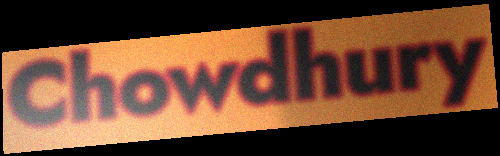
Chowdhury